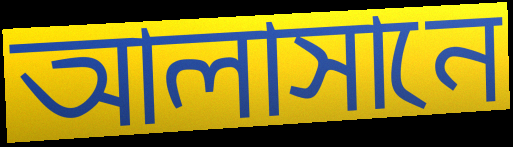
আলাসানে